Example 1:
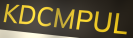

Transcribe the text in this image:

KDCMPUL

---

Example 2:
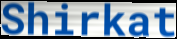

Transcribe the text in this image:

Shirkat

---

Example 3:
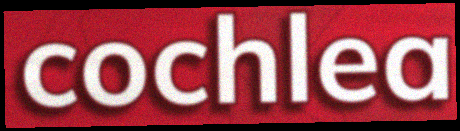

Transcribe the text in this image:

cochlea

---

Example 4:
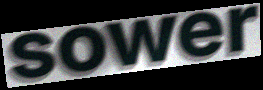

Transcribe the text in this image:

sower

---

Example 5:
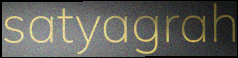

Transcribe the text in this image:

satyagrah